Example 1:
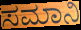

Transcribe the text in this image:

ಸಮಾನಿ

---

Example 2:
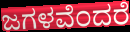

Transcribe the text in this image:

ಜಗಳವೆಂದರೆ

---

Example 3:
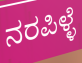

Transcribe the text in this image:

ನರಪಿಳ್ಳೆ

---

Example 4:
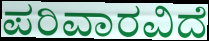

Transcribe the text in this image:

ಪರಿವಾರವಿದೆ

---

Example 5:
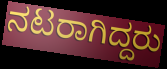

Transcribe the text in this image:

ನಟರಾಗಿದ್ದರು